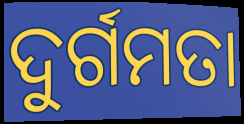
ଦୁର୍ଗମତା